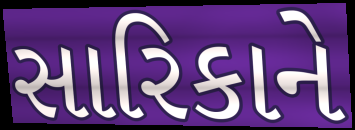
સારિકાને